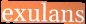
exulans